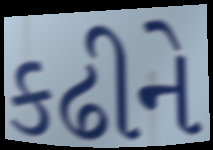
કઢીને